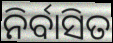
ନିର୍ବାସିତ